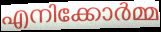
എനിക്കോർമ്മ